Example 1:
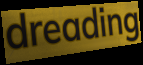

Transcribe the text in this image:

dreading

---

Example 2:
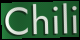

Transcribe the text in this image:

Chili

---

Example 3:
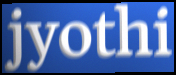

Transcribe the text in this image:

jyothi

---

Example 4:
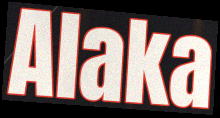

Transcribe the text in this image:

Alaka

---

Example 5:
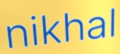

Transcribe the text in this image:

nikhal